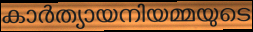
കാർത്യായനിയമ്മയുടെ